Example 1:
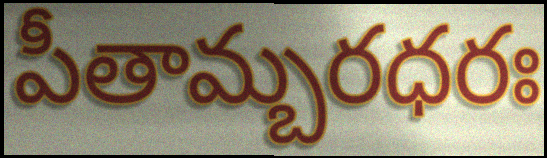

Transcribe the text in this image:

పీతామ్బరధరః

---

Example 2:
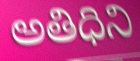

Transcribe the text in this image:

అతిధిని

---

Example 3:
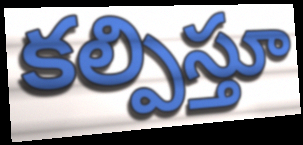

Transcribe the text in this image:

కల్పిస్తూ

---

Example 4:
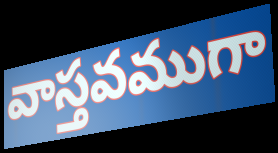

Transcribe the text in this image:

వాస్తవముగా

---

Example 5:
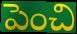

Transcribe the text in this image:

పెంచి